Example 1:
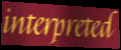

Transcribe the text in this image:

interpreted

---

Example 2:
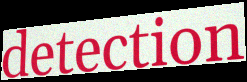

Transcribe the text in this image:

detection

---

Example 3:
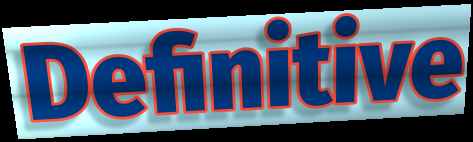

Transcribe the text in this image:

Definitive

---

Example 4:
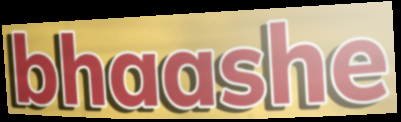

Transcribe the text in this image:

bhaashe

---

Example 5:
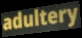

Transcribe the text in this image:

adultery